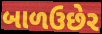
બાળઉછેર